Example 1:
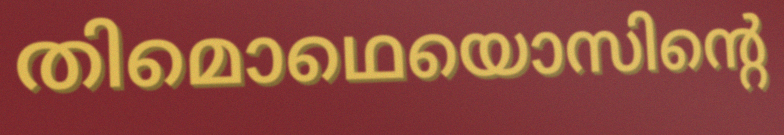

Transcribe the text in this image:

തിമൊഥെയൊസിന്റെ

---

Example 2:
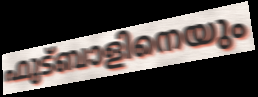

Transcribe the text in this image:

ഫുട്ബാളിനെയും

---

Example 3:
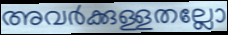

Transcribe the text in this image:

അവർക്കുള്ളതല്ലോ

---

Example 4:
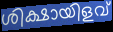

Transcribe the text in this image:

ശിക്ഷായിളവ്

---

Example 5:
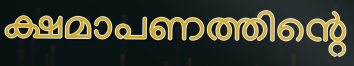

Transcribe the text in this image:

ക്ഷമാപണത്തിന്റെ